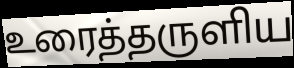
உரைத்தருளிய